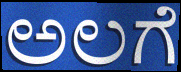
ಅಲಗೆ